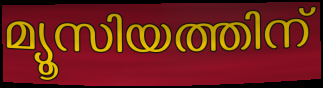
മ്യൂസിയത്തിന്